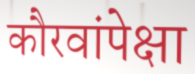
कौरवांपेक्षा